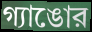
গ্যাঙোর